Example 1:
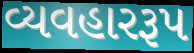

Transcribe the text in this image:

વ્યવહારરૂપ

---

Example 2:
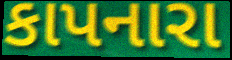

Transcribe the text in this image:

કાપનારા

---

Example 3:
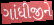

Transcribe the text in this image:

ગાંધીજીને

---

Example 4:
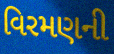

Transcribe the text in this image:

વિરમણની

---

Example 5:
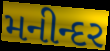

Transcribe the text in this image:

મનીન્દર